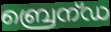
ബ്രെന്ഡ